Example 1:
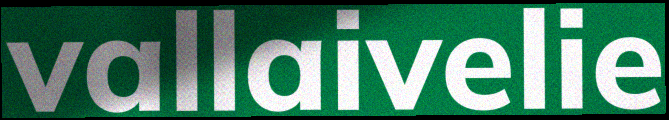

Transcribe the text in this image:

vallaivelie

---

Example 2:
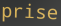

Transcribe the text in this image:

prise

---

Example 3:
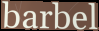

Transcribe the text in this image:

barbel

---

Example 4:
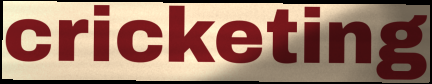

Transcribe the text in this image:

cricketing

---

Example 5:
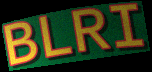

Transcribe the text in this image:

BLRI